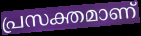
പ്രസക്തമാണ്